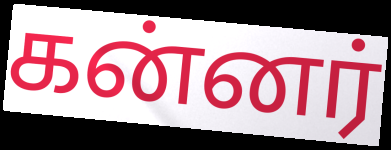
கன்னர்